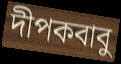
দীপকবাবু